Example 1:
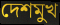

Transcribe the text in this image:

দেশমুখ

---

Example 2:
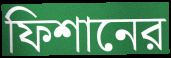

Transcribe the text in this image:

ফিশানের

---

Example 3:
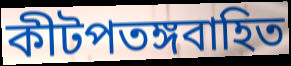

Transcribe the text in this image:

কীটপতঙ্গবাহিত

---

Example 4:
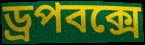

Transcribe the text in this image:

ড্রপবক্সে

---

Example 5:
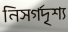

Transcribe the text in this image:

নিসর্গদৃশ্য